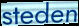
steden